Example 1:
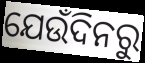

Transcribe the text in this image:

ଯେଉଁଦିନରୁ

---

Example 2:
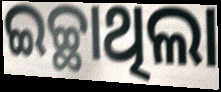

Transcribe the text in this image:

ଇଚ୍ଛାଥିଲା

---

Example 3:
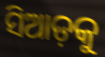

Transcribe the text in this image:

ସିଆଡ଼କୁ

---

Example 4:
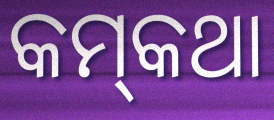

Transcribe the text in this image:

କମ୍‌କଥା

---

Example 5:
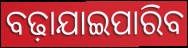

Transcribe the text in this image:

ବଢ଼ାଯାଇପାରିବ